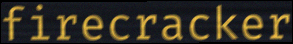
firecracker